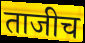
ताजीच